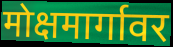
मोक्षमार्गावर